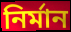
নিৰ্মান